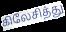
கிலேசித்து